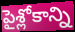
పైశ్లోకాన్ని